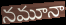
నమూనా